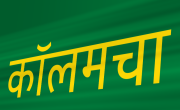
कॉलमचा